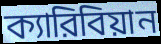
ক্যারিবিয়ান